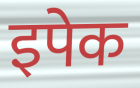
इपेक